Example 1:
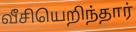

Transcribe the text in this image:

வீசியெறிந்தார்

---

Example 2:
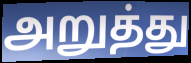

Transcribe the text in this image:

அறுத்து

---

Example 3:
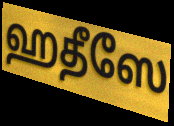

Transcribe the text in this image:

ஹதீஸே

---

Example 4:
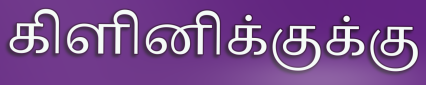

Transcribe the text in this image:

கிளினிக்குக்கு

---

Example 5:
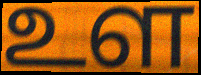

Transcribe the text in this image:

உள